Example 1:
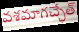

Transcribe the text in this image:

వశమాగచ్ఛేత్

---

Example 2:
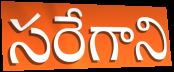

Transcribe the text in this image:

సరేగాని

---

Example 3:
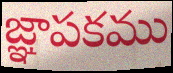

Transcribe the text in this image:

జ్ఞాపకము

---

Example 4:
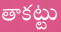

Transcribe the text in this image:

తాకట్టు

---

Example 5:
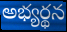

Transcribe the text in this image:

అభ్యర్థన